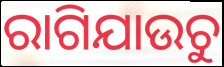
ରାଗିଯାଉଚୁ